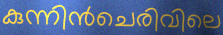
കുന്നിൻചെരിവിലെ